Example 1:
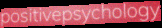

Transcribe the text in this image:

positivepsychology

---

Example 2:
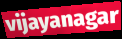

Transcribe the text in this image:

vijayanagar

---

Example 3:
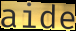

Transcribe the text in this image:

aide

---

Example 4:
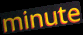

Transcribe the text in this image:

minute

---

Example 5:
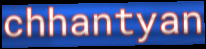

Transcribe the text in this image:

chhantyan